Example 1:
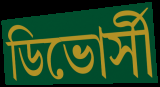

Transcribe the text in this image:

ডিভোর্সী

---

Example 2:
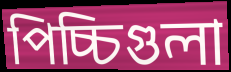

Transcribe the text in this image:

পিচ্চিগুলা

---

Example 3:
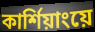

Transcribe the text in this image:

কার্শিয়াংয়ে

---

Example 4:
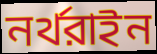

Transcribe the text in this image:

নর্থরাইন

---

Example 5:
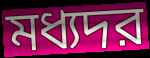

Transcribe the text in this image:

মধ্যদর